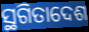
ସ୍ଥଗିତାଦେଶ